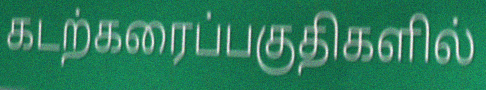
கடற்கரைப்பகுதிகளில்